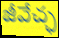
జీవేచ్ఛ